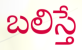
బలిస్తే